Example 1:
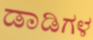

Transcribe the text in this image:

ಡಾಡಿಗಳ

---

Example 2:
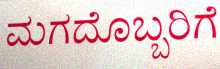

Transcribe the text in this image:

ಮಗದೊಬ್ಬರಿಗೆ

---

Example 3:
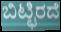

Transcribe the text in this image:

ಬಿಟ್ಟಿರದೆ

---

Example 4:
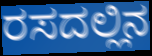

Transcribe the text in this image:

ರಸದಲ್ಲಿನ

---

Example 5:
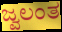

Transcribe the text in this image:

ಜ್ವಲಂತ